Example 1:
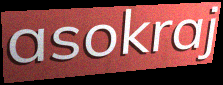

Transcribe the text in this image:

asokraj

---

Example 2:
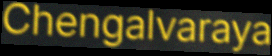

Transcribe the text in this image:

Chengalvaraya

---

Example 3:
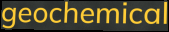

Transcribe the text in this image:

geochemical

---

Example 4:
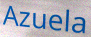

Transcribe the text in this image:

Azuela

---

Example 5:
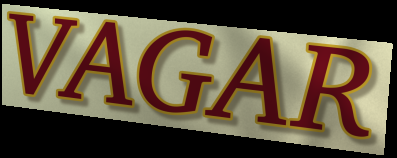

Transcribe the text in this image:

VAGAR